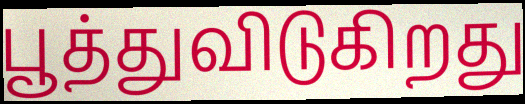
பூத்துவிடுகிறது